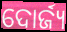
ଦୋର୍ଜ୍ୟ